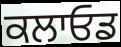
ਕਲਾਓਡ